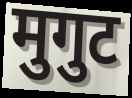
मुगुट